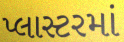
પ્લાસ્ટરમાં